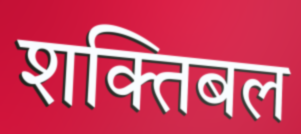
शक्तिबल